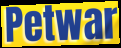
Petwar